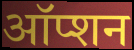
ऑप्शन